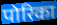
पोरिका